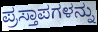
ಪ್ರಸ್ತಾಪಗಳನ್ನು